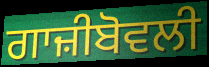
ਗਾਜ਼ੀਬੋਵਲੀ